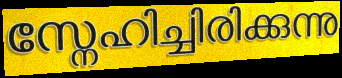
സ്നേഹിച്ചിരിക്കുന്നു